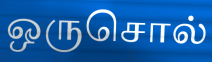
ஒருசொல்